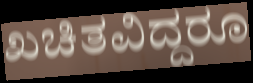
ಖಚಿತವಿದ್ದರೂ